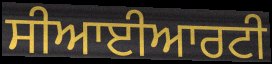
ਸੀਆਈਆਰਟੀ